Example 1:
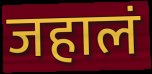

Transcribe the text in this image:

जहालं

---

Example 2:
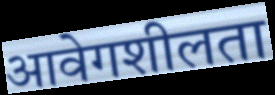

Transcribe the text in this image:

आवेगशीलता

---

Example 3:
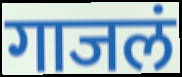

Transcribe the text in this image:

गाजलं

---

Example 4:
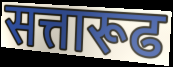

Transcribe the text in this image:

सत्तारूढ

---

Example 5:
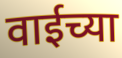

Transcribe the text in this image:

वाईच्या